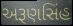
અરૂણસિંહ